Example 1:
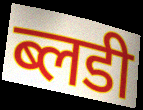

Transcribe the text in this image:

ब्लडी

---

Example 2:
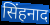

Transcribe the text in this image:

सिंहनाद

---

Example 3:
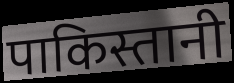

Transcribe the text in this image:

पाकिस्‍तानी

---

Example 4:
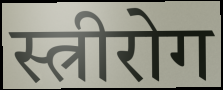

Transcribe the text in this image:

स्त्रीरोग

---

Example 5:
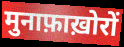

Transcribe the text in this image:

मुनाफ़ाख़ोरों